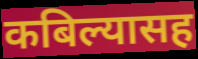
कबिल्यासह